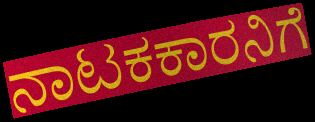
ನಾಟಕಕಾರನಿಗೆ